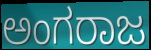
ಅಂಗರಾಜ